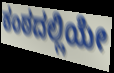
ಕಂಠದಲ್ಲಿಯೇ